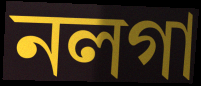
নলগা